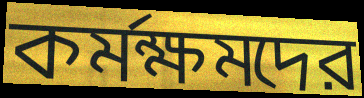
কর্মক্ষমদের